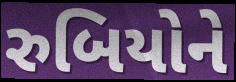
રુબિયોને